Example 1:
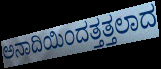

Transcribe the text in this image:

ಅನಾದಿಯಿಂದತ್ತತ್ತಲಾದ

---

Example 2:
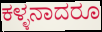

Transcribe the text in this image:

ಕಳ್ಳನಾದರೂ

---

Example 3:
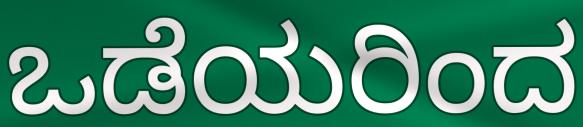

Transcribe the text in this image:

ಒಡೆಯರಿಂದ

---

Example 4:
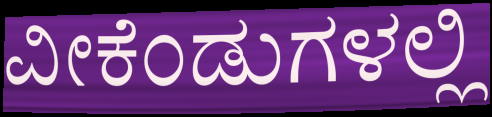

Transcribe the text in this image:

ವೀಕೆಂಡುಗಳಲ್ಲಿ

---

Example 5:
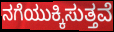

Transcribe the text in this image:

ನಗೆಯುಕ್ಕಿಸುತ್ತವೆ